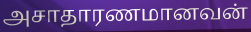
அசாதாரணமானவன்